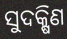
ସୁଦକ୍ଷିଣ